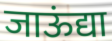
जाऊंद्या